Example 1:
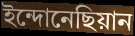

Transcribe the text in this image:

ইন্দোনেছিয়ান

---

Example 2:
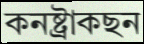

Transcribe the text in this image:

কনষ্ট্ৰাকছন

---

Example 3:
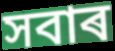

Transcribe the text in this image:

সবাৰ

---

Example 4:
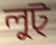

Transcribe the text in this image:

লুট্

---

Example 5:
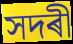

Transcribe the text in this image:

সদৰী